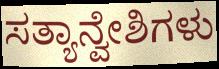
ಸತ್ಯಾನ್ವೇಶಿಗಳು